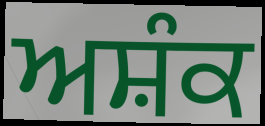
ਅਸ਼ੰਕ